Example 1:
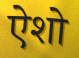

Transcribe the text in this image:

ऐशो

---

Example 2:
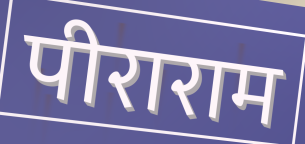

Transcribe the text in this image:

पीराराम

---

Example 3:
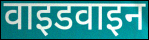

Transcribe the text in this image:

वाइडवाइन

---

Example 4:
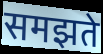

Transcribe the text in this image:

समझते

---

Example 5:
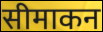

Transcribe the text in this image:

सीमाकन